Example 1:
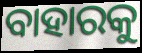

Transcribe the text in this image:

ବାହାରକୁ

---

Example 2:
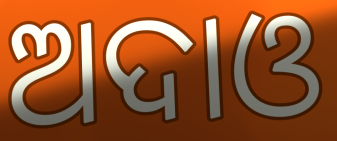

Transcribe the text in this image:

ଅଦାଓ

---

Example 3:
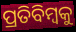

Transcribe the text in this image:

ପ୍ରତିବିମ୍ବକୁ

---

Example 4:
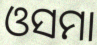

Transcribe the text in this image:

ଓସମା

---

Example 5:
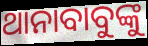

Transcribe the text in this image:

ଥାନାବାବୁଙ୍କୁ